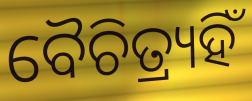
ବୈଚିତ୍ର୍ୟହିଁ